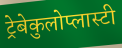
ट्रेबेकुलोप्लास्टी